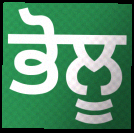
ਭੋਲੂ